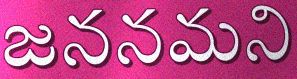
జననమని